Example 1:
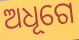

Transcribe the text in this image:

ଅଧୂଗେ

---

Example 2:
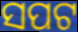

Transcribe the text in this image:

ସପଟ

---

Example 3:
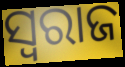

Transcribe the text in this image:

ସ୍ବରାଜ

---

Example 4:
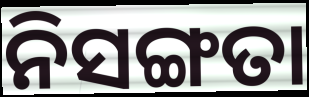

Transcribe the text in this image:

ନିସଙ୍ଗତା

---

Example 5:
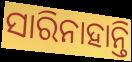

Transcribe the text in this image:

ସାରିନାହାନ୍ତି